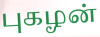
புகழன்